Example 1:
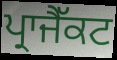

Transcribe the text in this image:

ਪ੍ਰਾਜੈੱਕਟ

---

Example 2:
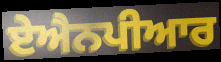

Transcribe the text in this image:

ਏਐਨਪੀਆਰ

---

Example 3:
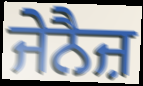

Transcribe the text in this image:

ਜੇਨੈਜ਼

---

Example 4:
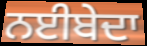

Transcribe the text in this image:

ਨਈਬੇਦਾ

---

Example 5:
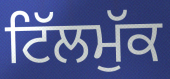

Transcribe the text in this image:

ਟਿੱਲਮੁੱਕ